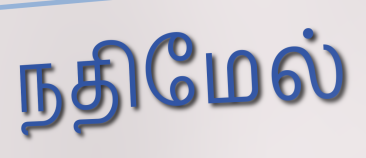
நதிமேல்